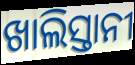
ଖାଲିସ୍ତାନୀ